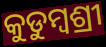
କୁଡୁମ୍ବଶ୍ରୀ